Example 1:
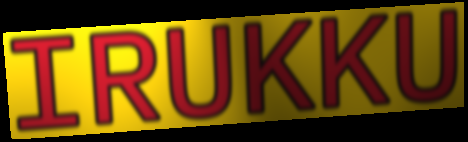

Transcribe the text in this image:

IRUKKU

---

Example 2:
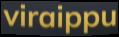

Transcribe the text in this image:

viraippu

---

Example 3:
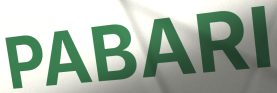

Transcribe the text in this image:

PABARI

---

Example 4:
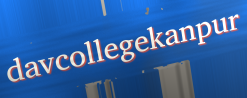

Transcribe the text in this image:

davcollegekanpur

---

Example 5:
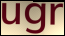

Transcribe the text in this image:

ugr